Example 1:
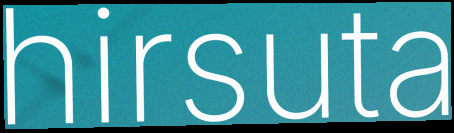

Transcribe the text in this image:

hirsuta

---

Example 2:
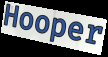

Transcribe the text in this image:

Hooper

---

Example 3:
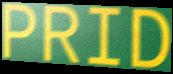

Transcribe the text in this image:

PRID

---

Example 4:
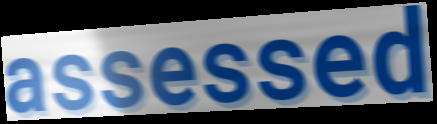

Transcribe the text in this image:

assessed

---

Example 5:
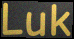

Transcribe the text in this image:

Luk